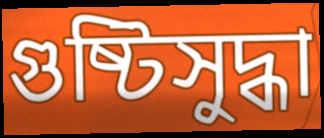
গুষ্টিসুদ্ধা